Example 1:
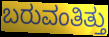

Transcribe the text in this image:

ಬರುವಂತಿತ್ತು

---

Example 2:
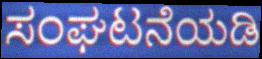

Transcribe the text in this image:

ಸಂಘಟನೆಯಡಿ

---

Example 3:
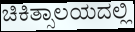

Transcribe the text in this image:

ಚಿಕಿತ್ಸಾಲಯದಲ್ಲಿ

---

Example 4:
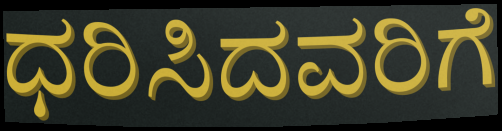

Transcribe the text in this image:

ಧರಿಸಿದವರಿಗೆ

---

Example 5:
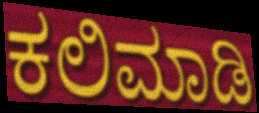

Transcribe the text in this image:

ಕಲಿಮಾಡಿ